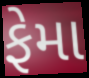
ફેમા